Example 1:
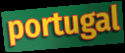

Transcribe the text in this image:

portugal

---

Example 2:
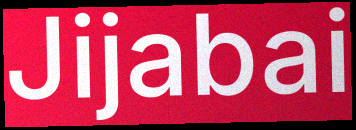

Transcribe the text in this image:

Jijabai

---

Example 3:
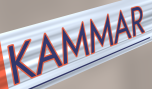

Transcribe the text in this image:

KAMMAR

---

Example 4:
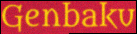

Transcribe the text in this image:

Genbaku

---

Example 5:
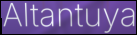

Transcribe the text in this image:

Altantuya